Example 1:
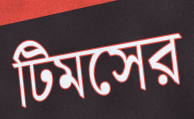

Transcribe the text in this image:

টিমসের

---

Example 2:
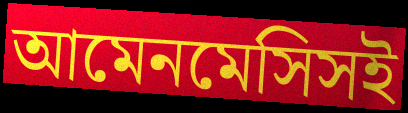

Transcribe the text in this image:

আমেনমেসিসই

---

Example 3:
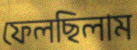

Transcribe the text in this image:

ফেলছিলাম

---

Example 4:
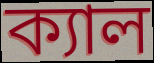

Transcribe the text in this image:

ক্যাল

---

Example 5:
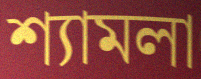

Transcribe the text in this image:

শ্যামলা